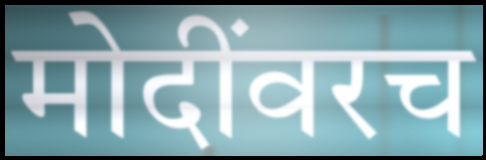
मोदींवरच